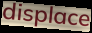
displace